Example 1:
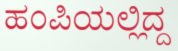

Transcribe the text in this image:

ಹಂಪಿಯಲ್ಲಿದ್ದ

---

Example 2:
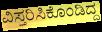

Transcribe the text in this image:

ವಿಸ್ತರಿಸಿಕೊಂಡಿದ್ದ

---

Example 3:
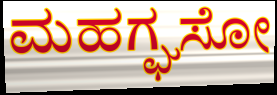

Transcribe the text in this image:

ಮಹಗ್ಘಸೋ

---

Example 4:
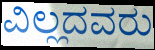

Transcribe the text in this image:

ವಿಲ್ಲದವರು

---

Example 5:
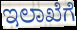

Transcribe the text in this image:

ಇಲಾಖೆಗೆ